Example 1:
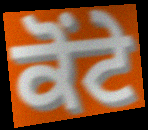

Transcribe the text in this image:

ਕੋਂਟੇ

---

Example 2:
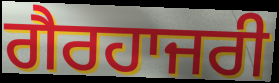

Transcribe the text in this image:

ਗੈਰਹਾਜਰੀ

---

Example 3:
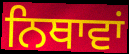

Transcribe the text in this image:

ਨਿਥਾਵਾਂ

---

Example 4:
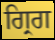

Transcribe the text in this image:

ਗ੍ਰਿਗ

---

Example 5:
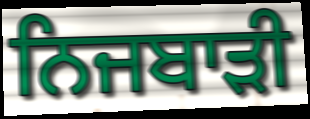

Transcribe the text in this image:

ਨਿਜਬਾੜੀ